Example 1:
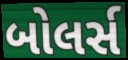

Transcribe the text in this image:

બોલર્સ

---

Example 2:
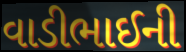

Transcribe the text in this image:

વાડીભાઈની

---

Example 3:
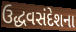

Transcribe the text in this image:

ઉદ્ધવસંદેશના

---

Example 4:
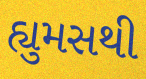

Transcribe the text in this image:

હ્યુમસથી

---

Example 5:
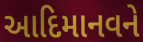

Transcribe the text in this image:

આદિમાનવને